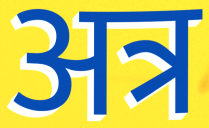
अत्र